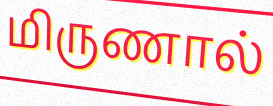
மிருணால்